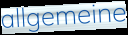
allgemeine